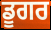
ਡੂਗਰ